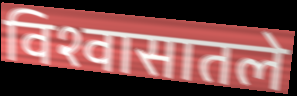
विश्वासातले